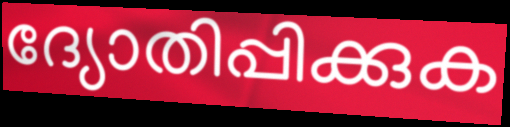
ദ്യോതിപ്പിക്കുക